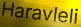
Haravleli